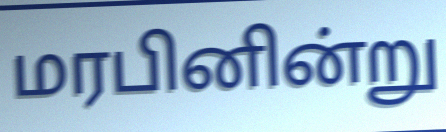
மரபினின்று